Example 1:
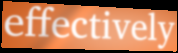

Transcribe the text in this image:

effectively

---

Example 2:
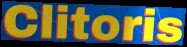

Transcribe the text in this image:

Clitoris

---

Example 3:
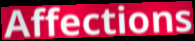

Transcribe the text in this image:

Affections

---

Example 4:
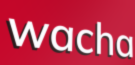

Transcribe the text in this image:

wacha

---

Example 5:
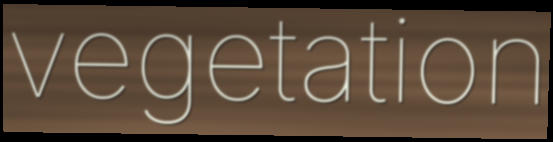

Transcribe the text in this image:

vegetation